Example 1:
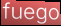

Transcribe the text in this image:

fuego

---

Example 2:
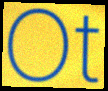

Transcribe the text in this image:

Ot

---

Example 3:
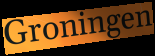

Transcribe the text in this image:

Groningen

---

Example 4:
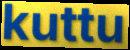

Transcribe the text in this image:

kuttu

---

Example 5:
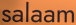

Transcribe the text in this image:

salaam